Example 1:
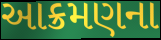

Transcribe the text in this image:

આક્રમણના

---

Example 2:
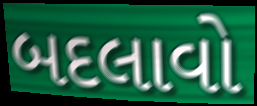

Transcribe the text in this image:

બદલાવો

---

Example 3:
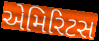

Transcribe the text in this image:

એમિરિટસ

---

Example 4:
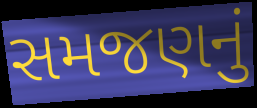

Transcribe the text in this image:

સમજણનું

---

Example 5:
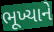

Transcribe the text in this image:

ભૂખ્યાને